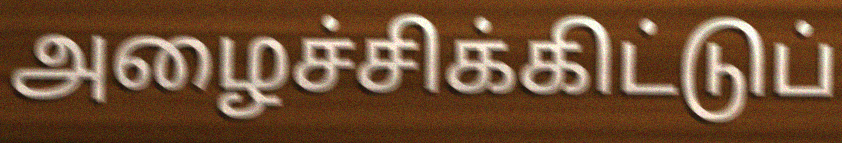
அழைச்சிக்கிட்டுப்